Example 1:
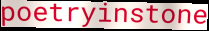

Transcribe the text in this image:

poetryinstone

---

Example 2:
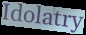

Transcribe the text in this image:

Idolatry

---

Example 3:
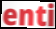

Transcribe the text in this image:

enti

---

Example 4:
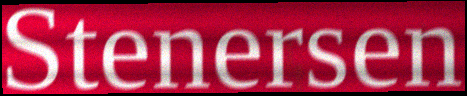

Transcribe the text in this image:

Stenersen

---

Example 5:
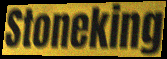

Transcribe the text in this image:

Stoneking